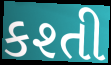
કશ્તી